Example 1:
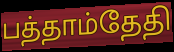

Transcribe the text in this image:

பத்தாம்தேதி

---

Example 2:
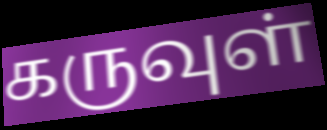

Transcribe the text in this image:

கருவுள்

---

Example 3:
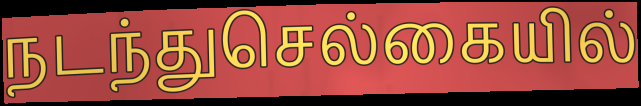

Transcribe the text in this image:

நடந்துசெல்கையில்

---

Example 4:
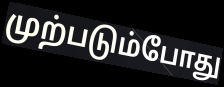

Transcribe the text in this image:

முற்படும்போது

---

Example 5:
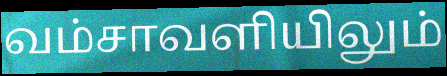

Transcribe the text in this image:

வம்சாவளியிலும்